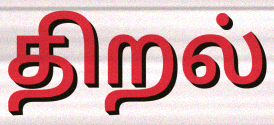
திறல்